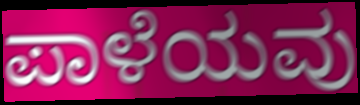
ಪಾಳೆಯವು